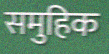
समुहिक